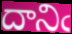
దానిఁ